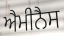
ਐਮੀਨੈਸ